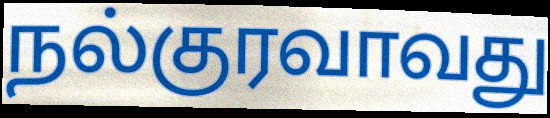
நல்குரவாவது